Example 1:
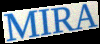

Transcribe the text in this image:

MIRA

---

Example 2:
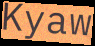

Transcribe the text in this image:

Kyaw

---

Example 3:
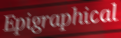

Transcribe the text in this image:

Epigraphical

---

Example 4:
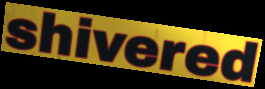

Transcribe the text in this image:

shivered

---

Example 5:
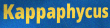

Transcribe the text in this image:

Kappaphycus